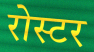
रोस्टर